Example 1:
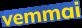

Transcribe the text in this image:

vemmai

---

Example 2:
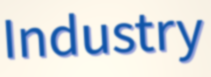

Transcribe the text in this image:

Industry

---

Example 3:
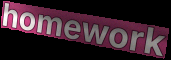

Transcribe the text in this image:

homework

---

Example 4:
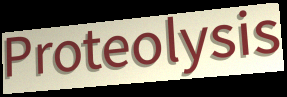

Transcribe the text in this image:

Proteolysis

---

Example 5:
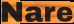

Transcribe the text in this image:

Nare